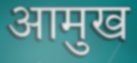
आमुख